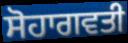
ਸੋਹਾਗਵਤੀ